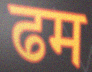
ढम